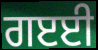
ਗੲਈ